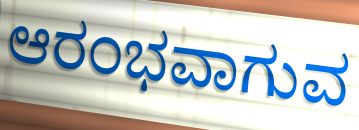
ಆರಂಭವಾಗುವ